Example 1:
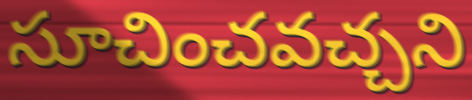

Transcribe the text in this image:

సూచించవచ్చని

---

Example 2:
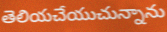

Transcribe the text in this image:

తెలియచేయుచున్నాను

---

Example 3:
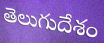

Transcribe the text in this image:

తెలుగుదేశం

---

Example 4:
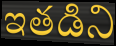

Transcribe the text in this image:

ఇతడిని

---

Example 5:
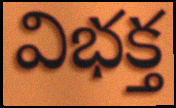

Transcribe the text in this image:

విభక్త